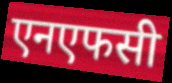
एनएफसी